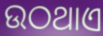
ଉଠଥାଏ